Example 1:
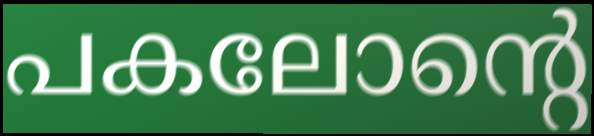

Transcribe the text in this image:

പകലോന്റെ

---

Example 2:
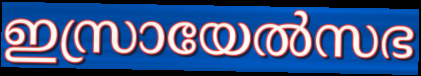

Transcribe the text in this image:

ഇസ്രായേൽസഭ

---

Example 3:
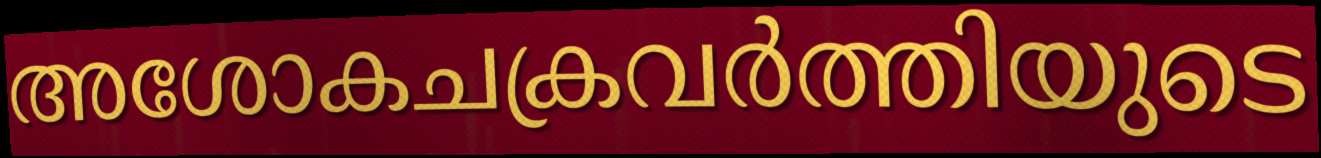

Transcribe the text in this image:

അശോകചക്രവർത്തിയുടെ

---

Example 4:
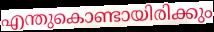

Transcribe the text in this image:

എന്തുകൊണ്ടായിരിക്കും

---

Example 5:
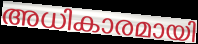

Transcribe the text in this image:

അധികാരമായി